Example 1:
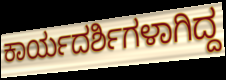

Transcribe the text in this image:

ಕಾರ್ಯದರ್ಶಿಗಳಾಗಿದ್ದ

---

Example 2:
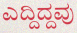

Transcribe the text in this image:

ಎದ್ದಿದ್ದವು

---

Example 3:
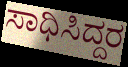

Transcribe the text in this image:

ಸಾಧಿಸಿದ್ದರ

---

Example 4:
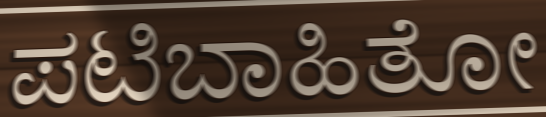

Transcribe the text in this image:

ಪಟಿಬಾಹಿತೋ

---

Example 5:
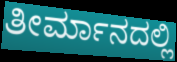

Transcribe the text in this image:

ತೀರ್ಮಾನದಲ್ಲಿ